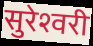
सुरेश्वरी